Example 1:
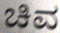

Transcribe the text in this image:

ಚಿವ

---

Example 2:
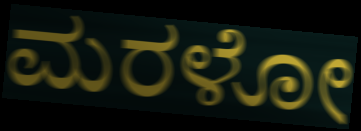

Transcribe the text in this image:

ಮರಳೋ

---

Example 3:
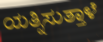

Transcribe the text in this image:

ಯತ್ನಿಸುತ್ತಾಳೆ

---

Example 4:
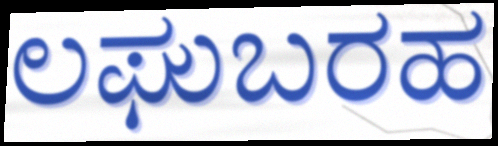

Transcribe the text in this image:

ಲಘುಬರಹ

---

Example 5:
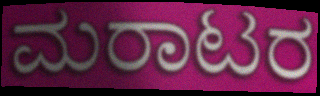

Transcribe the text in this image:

ಮರಾಟರ